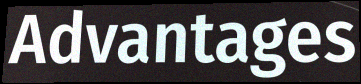
Advantages